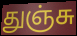
துஞ்சு